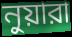
নুয়ারা